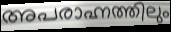
അപരാഹ്നത്തിലും